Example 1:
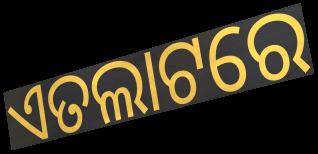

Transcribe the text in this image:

ଏତଲାଟରେ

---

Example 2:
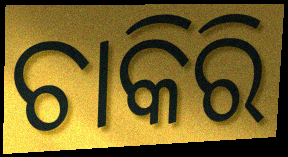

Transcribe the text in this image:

ଚାକିରି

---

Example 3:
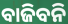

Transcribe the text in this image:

ବାଜିବନି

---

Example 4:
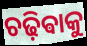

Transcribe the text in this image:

ଚଢ଼ିଵାକୁ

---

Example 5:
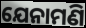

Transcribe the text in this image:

ଯେନାମଣି